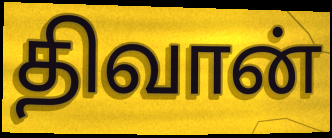
திவான்